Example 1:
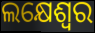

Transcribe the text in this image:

ଲକ୍ଷେଶ୍ୱର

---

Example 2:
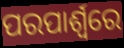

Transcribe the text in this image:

ପରପାର୍ଶ୍ୱରେ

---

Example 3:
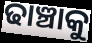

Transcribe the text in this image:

ଢାଞ୍ଚାକୁ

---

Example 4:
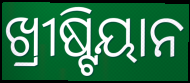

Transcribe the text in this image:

ଖ୍ରୀଷ୍ଟିୟାନ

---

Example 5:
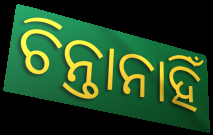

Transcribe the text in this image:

ଚିନ୍ତାନାହିଁ